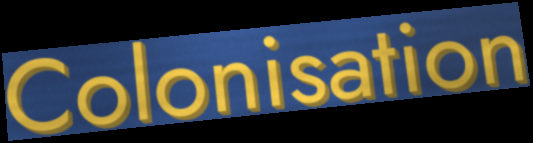
Colonisation